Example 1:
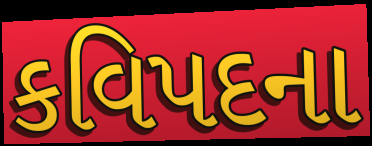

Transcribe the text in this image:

કવિપદના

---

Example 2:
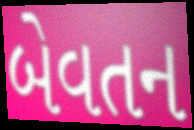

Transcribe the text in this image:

બેવતન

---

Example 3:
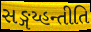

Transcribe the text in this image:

સઙ્ગય્હન્તીતિ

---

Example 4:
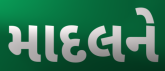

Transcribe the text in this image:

માદલને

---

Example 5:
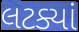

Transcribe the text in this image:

લટક્યાં